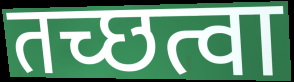
तच्छत्वा